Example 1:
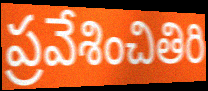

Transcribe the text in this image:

ప్రవేశించితిరి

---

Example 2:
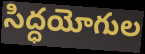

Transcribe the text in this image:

సిద్ధయోగుల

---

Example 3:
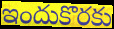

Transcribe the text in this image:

ఇందుకొరకు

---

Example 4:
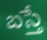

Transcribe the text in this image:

బస్తే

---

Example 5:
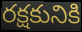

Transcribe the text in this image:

రక్షకునికి